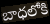
బాధలోకి